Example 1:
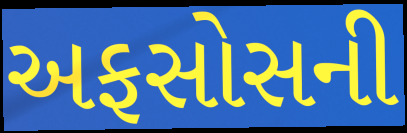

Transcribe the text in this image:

અફસોસની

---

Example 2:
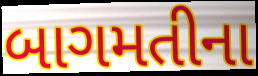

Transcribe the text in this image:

બાગમતીના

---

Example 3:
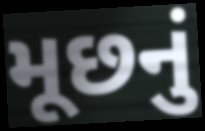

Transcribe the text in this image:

મૂછનું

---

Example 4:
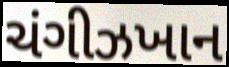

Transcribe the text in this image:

ચંગીઝખાન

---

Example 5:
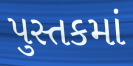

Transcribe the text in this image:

પુસ્તકમાં